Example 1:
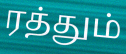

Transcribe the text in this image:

ரத்தும்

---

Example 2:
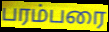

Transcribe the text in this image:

பரம்பரை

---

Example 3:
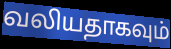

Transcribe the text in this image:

வலியதாகவும்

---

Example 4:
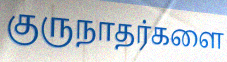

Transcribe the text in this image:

குருநாதர்களை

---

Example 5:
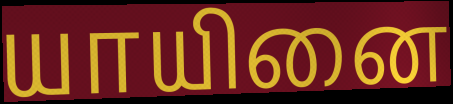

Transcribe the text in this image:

யாயினை